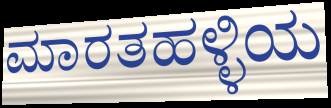
ಮಾರತಹಳ್ಳಿಯ